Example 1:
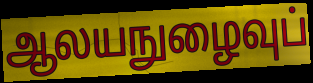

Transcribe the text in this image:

ஆலயநுழைவுப்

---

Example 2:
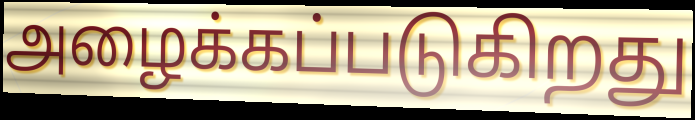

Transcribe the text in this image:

அழைக்கப்படுகிறது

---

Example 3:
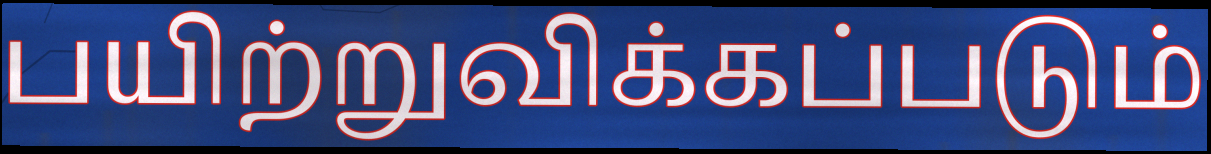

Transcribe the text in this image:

பயிற்றுவிக்கப்படும்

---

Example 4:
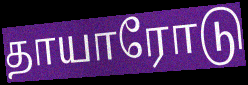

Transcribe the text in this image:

தாயாரோடு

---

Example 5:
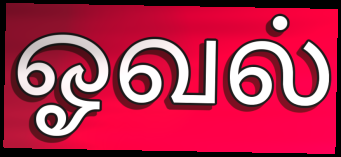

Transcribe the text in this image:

ஓவல்